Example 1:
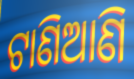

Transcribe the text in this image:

ଟାଣିଆଣି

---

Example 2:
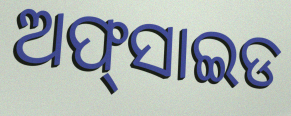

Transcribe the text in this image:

ଅଫ୍‍ସାଇଡ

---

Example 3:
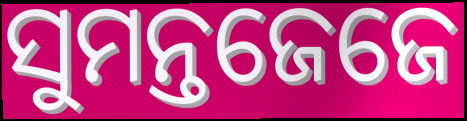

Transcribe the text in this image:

ସୁମନ୍ତଜେଜେ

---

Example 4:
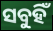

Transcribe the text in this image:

ସବୁହିଁ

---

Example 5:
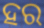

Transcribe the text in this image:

ହର